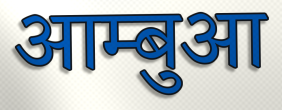
आम्बुआ